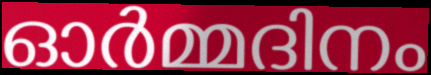
ഓർമ്മദിനം